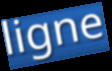
ligne